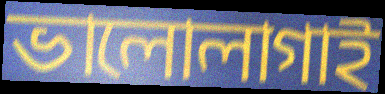
ভালোলাগাই